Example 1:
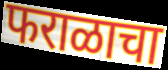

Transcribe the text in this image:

फराळाचा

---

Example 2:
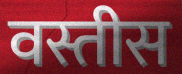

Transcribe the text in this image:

वस्तीस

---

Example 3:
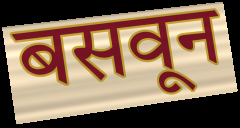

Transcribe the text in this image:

बसवून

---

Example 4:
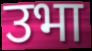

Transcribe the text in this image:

उभा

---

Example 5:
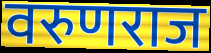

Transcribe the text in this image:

वरुणराज